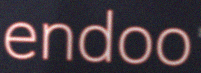
endoo